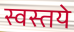
स्वस्तये